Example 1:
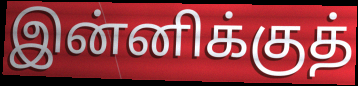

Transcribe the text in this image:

இன்னிக்குத்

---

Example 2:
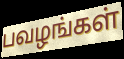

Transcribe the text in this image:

பவழங்கள்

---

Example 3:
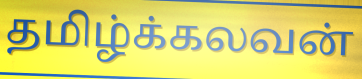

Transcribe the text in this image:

தமிழ்க்கலவன்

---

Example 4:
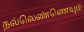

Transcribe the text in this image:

நல்லெண்ணெயும்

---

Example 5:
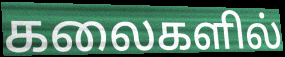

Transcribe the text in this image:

கலைகளில்